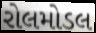
રોલમોડલ